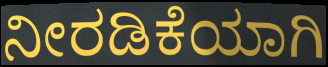
ನೀರಡಿಕೆಯಾಗಿ